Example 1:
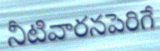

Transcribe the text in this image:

నీటివారనపెరిగే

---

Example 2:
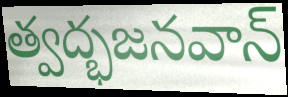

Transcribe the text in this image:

త్వద్భజనవాన్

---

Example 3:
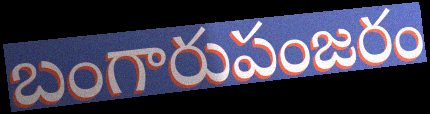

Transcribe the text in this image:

బంగారుపంజరం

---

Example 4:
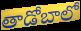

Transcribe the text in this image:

తాడోబాలో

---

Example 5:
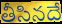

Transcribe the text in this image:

తీసినదే